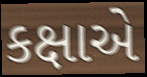
કક્ષાએ